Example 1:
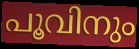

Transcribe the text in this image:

പൂവിനും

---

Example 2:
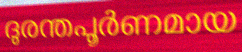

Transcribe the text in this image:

ദുരന്തപൂർണമായ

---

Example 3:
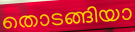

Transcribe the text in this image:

തൊടങ്ങിയാ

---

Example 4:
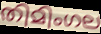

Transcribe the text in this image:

തിമിംഗല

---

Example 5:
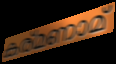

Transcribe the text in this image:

കര്മണാമ്